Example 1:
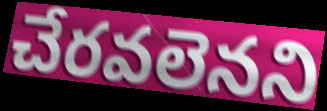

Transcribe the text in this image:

చేరవలెనని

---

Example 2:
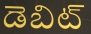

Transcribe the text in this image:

డెబిట్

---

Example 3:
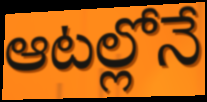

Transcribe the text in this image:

ఆటల్లోనే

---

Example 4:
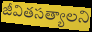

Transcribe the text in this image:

జీవితసత్యాలని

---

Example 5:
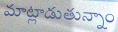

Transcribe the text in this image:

మాట్లాడుతున్నాం